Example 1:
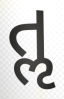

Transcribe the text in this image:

તૢ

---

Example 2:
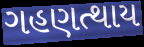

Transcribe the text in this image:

ગહણત્થાય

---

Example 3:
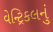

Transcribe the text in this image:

વેન્ટ્રિકલનું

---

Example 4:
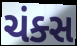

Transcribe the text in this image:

ચંક્સ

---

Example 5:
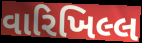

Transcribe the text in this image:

વારિખિલ્લ